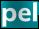
pel